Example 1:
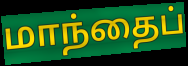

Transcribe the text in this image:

மாந்தைப்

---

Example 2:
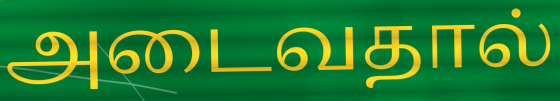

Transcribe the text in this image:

அடைவதால்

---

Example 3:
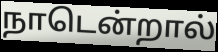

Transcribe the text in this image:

நாடென்றால்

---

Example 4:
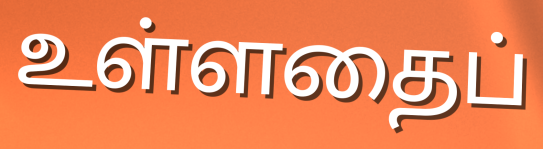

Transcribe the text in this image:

உள்ளதைப்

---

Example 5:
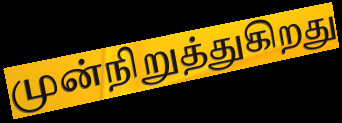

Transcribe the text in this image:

முன்நிறுத்துகிறது